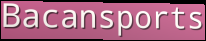
Bacansports